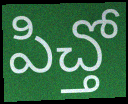
పిచ్తో